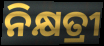
ନିକ୍ଷତ୍ରୀ